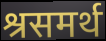
श्रसमर्थ